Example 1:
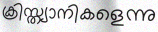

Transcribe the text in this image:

ക്രിസ്ത്യാനികളെന്നു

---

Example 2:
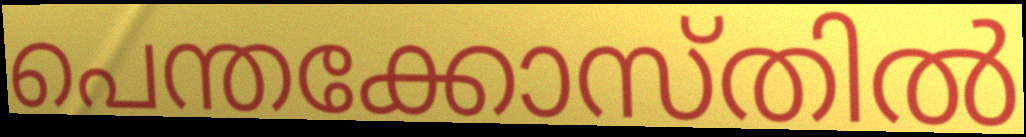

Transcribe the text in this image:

പെന്തക്കോസ്തിൽ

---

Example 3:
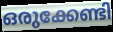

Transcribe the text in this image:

ഒരുക്കേണ്ടി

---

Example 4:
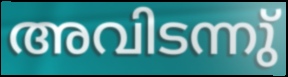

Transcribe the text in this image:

അവിടന്നു്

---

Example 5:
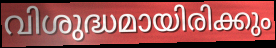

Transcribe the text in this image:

വിശുദ്ധമായിരിക്കും